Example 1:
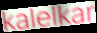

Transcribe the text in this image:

kalelkar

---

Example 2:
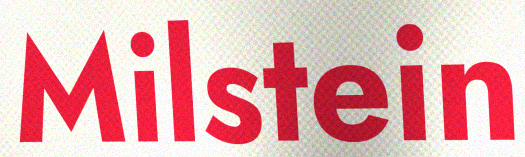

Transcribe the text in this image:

Milstein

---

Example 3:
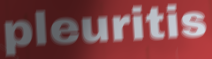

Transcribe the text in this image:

pleuritis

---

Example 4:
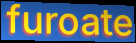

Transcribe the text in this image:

furoate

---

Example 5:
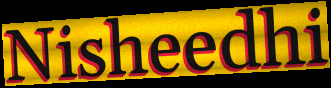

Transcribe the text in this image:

Nisheedhi